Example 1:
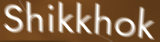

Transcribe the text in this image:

Shikkhok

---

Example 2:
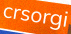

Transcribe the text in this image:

crsorgi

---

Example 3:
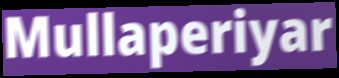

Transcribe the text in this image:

Mullaperiyar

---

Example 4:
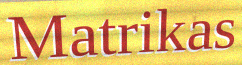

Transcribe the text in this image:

Matrikas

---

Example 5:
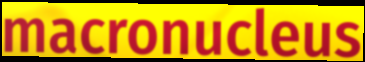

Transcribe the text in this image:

macronucleus